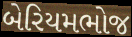
બેરિયમભોજ